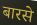
बारसे